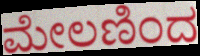
ಮೇಲಣಿಂದ